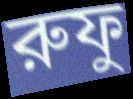
রুফু